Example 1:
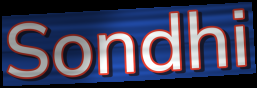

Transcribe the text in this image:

Sondhi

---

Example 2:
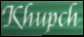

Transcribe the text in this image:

Khupch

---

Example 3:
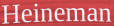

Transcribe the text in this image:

Heineman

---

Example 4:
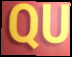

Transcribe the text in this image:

QU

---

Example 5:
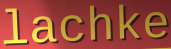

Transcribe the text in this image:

lachke